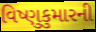
વિષ્ણુકુમારની